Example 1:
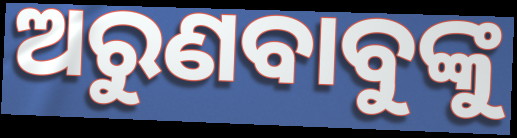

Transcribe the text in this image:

ଅରୁଣବାବୁଙ୍କୁ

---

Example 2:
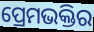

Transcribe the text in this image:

ପ୍ରେମଭକ୍ତିର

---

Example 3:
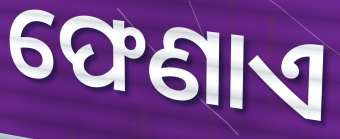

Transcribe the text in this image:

ଫେଣାଏ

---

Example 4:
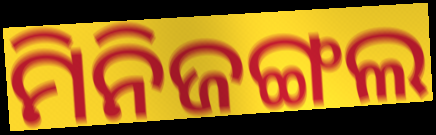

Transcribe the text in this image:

ମିନିଜଙ୍ଗଲ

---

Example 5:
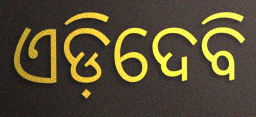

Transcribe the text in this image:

ଏଡ଼ିଦେବି